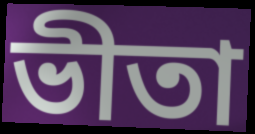
ভীতা